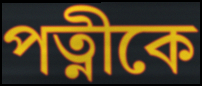
পত্নীকে